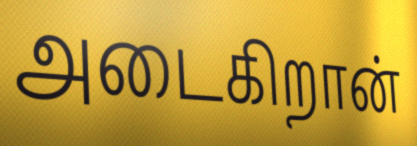
அடைகிறான்